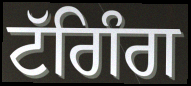
ਟੱਗਿੰਗ